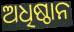
ଅଧିଷ୍ଠାନ